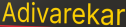
Adivarekar